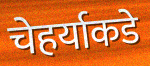
चेहर्याकडे